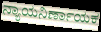
ನ್ಯಾಯನಿರ್ಣಾಯಕ